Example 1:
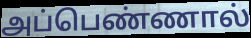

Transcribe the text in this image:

அப்பெண்ணால்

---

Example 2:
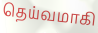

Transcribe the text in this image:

தெய்வமாகி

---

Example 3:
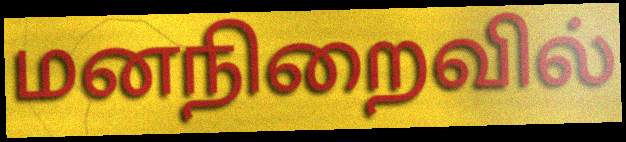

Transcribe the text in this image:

மனநிறைவில்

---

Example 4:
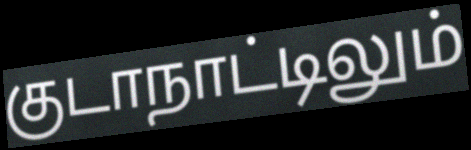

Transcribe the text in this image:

குடாநாட்டிலும்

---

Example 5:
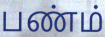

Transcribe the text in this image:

பண்ம்